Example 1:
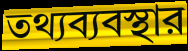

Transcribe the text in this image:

তথ্যব্যবস্থার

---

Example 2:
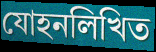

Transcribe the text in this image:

যোহনলিখিত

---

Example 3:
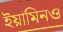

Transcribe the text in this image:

ইয়ামিনও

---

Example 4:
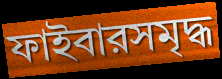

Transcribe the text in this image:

ফাইবারসমৃদ্ধ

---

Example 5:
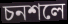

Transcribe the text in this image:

চনশলে